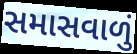
સમાસવાળું